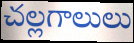
చల్లగాలులు